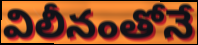
విలీనంతోనే